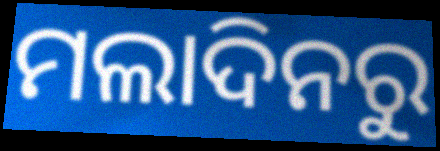
ମଲାଦିନରୁ